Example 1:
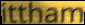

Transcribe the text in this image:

ittham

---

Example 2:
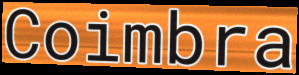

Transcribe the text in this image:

Coimbra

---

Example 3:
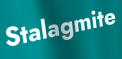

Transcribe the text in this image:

Stalagmite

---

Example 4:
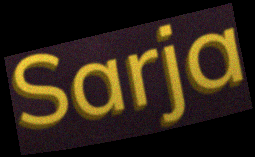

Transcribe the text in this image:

Sarja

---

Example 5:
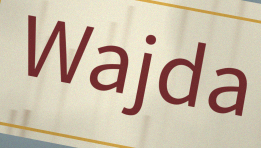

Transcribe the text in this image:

Wajda